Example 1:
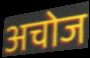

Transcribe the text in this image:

अचोज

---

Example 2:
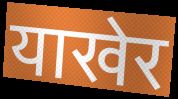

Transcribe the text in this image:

याखेर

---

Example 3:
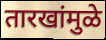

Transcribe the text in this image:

तारखांमुळे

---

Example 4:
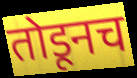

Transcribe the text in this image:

तोडूनच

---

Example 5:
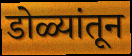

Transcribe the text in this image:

डोळ्यांतून